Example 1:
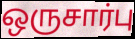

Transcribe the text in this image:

ஒருசார்பு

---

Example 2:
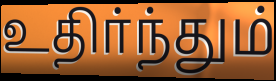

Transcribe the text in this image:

உதிர்ந்தும்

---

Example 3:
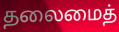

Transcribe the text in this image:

தலைமைத்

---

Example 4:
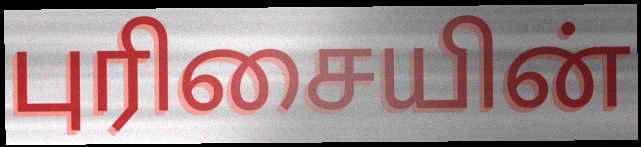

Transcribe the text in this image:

புரிசையின்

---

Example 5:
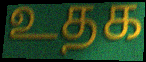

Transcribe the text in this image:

உதக